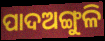
ପାଦଅଙ୍ଗୁଳି